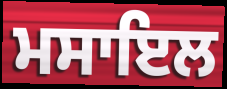
ਮਸਾਇਲ